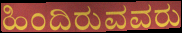
ಹಿಂದಿರುವವರು